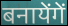
बनायेंगें